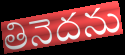
తినెదను